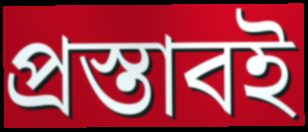
প্রস্তাবই